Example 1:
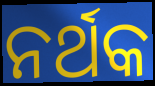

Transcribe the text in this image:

ନର୍ଥକ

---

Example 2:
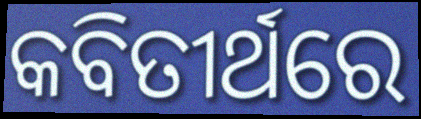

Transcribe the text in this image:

କବିତୀର୍ଥରେ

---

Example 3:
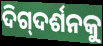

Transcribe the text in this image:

ଦିଗ୍‌ଦର୍ଶନକୁ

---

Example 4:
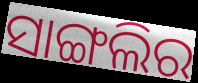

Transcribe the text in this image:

ସାଙ୍ଗଲିର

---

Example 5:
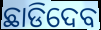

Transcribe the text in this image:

ଛାଡିଦେବ